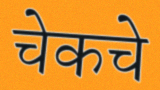
चेकचे